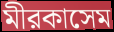
মীরকাসেম